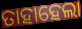
ତାହାହେଲା